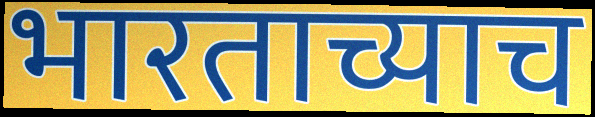
भारताच्याच